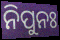
ନିପୁନଃ